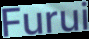
Furui